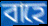
বাহে